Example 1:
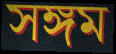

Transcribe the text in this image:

সঙ্গম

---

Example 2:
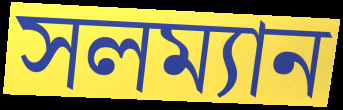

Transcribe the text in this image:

সলম্যান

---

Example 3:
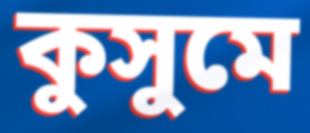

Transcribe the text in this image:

কুসুমে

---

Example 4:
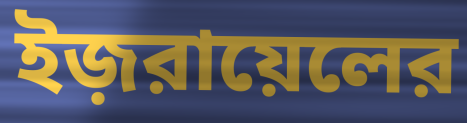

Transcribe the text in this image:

ইজ়রায়েলের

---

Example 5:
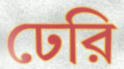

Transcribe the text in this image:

ঢেরি